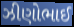
ઝીણોભાઈ